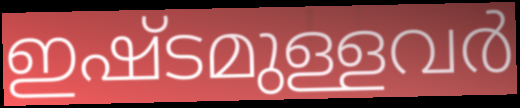
ഇഷ്ടമുള്ളവർ